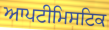
ਆਪਟੀਮਿਸਟਿਕ